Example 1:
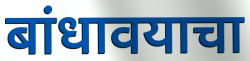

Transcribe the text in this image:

बांधावयाचा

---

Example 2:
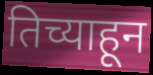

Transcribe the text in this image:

तिच्याहून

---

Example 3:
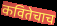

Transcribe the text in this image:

कवितेचाच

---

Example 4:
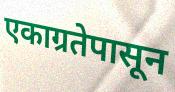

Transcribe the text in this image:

एकाग्रतेपासून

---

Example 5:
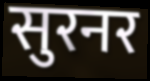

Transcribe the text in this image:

सुरनर